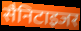
सैनिटाइजर